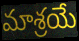
మాశ్రయే